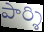
పార్శి